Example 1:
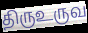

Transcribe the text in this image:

திருஉருவ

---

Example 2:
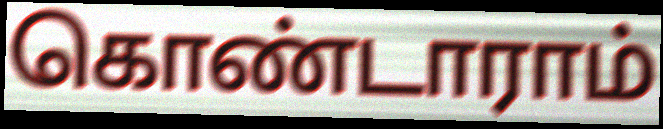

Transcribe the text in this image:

கொண்டாராம்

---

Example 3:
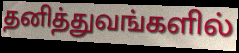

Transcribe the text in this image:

தனித்துவங்களில்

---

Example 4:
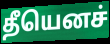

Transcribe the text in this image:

தீயெனச்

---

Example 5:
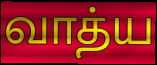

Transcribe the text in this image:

வாத்ய